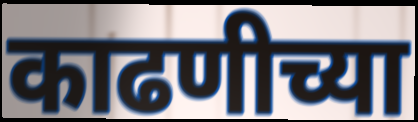
काढणीच्या